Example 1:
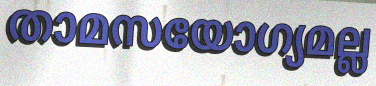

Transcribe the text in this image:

താമസയോഗ്യമല്ല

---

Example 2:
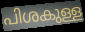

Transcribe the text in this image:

പിശകുള്ള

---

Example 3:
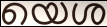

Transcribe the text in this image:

യെശ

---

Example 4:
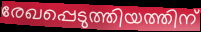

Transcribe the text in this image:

രേഖപ്പെടുത്തിയത്തിന്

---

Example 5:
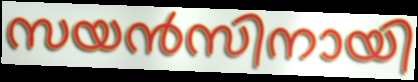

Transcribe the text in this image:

സയൻസിനായി